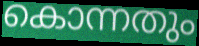
കൊന്നതും